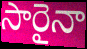
సారైనా